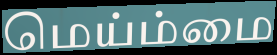
மெய்ம்மை